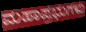
ಮಹಾಪ್ರಭುಗಳು